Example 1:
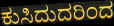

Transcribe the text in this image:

ಕುಸಿದುದರಿಂದ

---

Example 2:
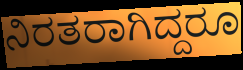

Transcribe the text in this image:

ನಿರತರಾಗಿದ್ದರೂ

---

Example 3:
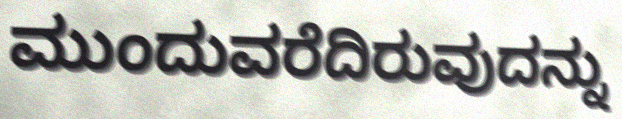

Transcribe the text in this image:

ಮುಂದುವರೆದಿರುವುದನ್ನು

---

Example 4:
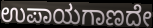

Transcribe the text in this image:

ಉಪಾಯಗಾಣದೇ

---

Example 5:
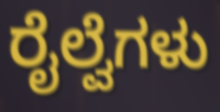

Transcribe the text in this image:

ರೈಲ್ವೆಗಳು